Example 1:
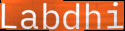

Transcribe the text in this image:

Labdhi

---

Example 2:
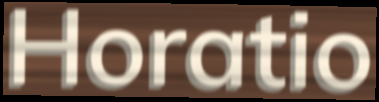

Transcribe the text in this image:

Horatio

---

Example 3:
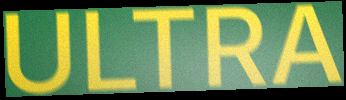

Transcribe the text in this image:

ULTRA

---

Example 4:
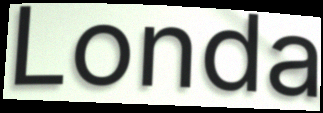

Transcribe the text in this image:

Londa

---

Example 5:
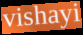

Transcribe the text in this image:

vishayi